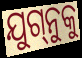
ଯୁଗ୍‌ନୁକୁ